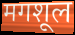
मगशूल